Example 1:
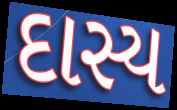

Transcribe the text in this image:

દાસ્ય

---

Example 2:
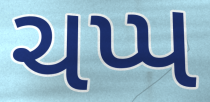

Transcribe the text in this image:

ચપ્પ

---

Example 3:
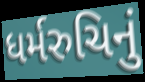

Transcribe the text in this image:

ધર્મરુચિનું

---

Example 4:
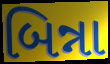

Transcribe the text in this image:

બિન્ના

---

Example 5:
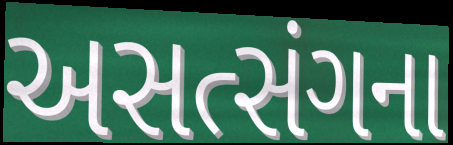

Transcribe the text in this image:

અસત્સંગના